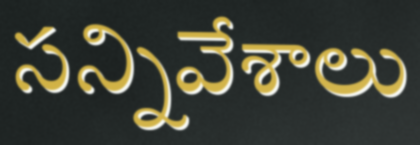
సన్నివేశాలు